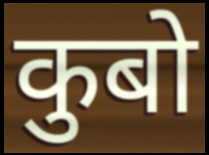
कुबो